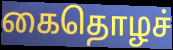
கைதொழச்